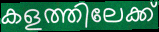
കളത്തിലേക്ക്